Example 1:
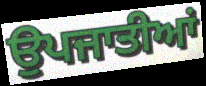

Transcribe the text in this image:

ਉਪਜਾਤੀਆਂ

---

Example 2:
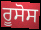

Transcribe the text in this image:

ਰੂਸੋਸ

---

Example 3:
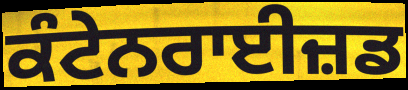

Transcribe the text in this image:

ਕੰਟੇਨਰਾਈਜ਼ਡ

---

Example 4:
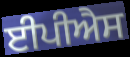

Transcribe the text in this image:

ਈਪੀਐਸ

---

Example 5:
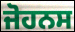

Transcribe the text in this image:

ਜੋਹਨਸ